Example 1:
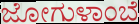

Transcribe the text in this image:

ಜೋಗುಳಾಂಬೆ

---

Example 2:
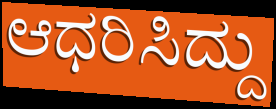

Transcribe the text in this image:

ಆಧರಿಸಿದ್ದು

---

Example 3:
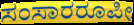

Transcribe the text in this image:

ಸಂಸಾರರೂಪೀ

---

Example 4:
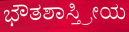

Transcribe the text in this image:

ಭೌತಶಾಸ್ತ್ರೀಯ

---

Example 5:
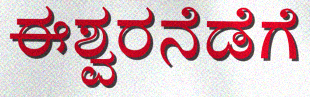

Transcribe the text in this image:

ಈಶ್ವರನೆಡೆಗೆ